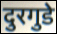
दुरगुडे